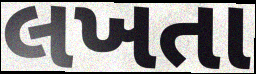
લખતા